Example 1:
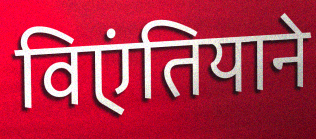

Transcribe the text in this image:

विएंतियाने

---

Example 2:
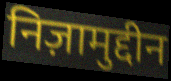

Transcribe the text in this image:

निज़ामुद्दीन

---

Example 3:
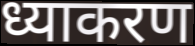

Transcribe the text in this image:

ध्याकरण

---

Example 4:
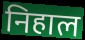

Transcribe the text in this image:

निहाल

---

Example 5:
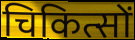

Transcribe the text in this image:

चिकित्सों